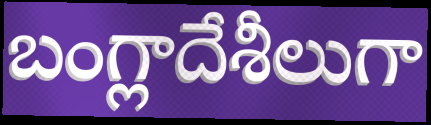
బంగ్లాదేశీలుగా